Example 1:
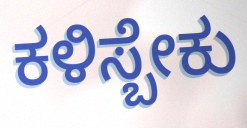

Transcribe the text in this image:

ಕಳಿಸ್ಬೇಕು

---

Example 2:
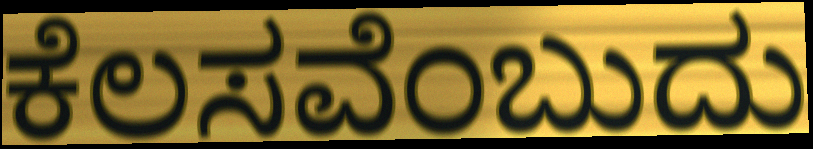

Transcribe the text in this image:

ಕೆಲಸವೆಂಬುದು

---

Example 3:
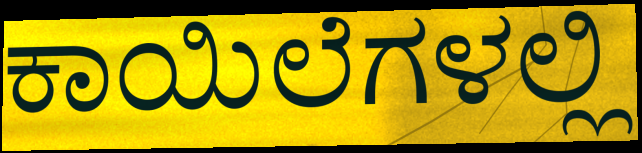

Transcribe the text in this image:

ಕಾಯಿಲೆಗಳಲ್ಲಿ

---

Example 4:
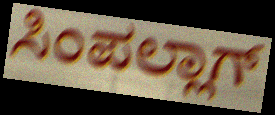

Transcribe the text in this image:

ಸಿಂಪಲ್ಲಾಗ್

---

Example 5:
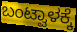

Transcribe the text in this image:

ಬಂಟ್ವಾಳಕ್ಕೆ